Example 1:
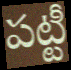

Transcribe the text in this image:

పట్టీ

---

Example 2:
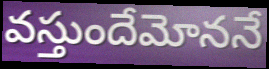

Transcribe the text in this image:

వస్తుందేమోననే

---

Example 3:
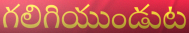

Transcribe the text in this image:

గలిగియుండుట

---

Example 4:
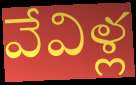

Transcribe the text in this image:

వేవిళ్ల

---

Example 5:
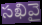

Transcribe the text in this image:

సఖివై